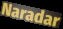
Naradar